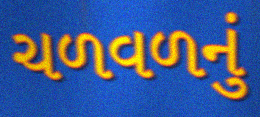
ચળવળનું